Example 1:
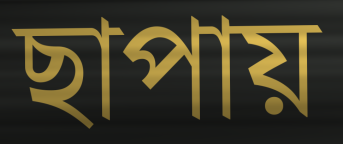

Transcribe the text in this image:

ছাপায়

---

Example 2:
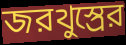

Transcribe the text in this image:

জরথুস্ত্রের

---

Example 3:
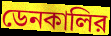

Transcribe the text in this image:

ডেনকালির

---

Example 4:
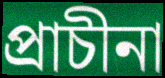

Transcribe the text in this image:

প্রাচীনা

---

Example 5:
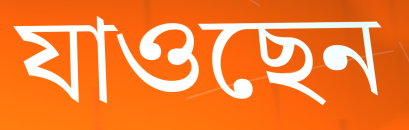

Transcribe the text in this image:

যাওছেন